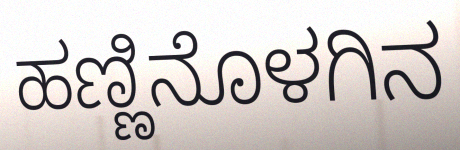
ಹಣ್ಣಿನೊಳಗಿನ